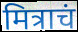
मित्राचं